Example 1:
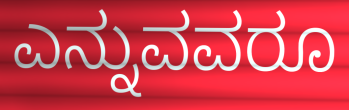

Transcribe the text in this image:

ಎನ್ನುವವರೂ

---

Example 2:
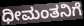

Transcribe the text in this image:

ಧೀಮಂತನಿಗೆ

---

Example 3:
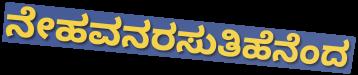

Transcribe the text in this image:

ನೇಹವನರಸುತಿಹೆನೆಂದ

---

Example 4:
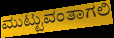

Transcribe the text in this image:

ಮುಟ್ಟುವಂತಾಗಲಿ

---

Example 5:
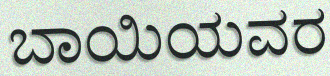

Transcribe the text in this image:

ಬಾಯಿಯವರ